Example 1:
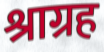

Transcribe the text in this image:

श्राग्रह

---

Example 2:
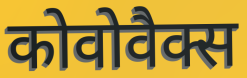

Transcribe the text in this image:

कोवोवैक्स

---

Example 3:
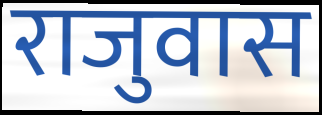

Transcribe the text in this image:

राजुवास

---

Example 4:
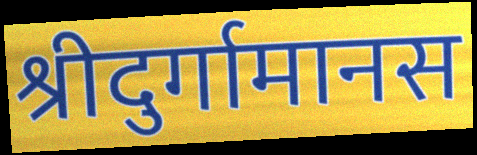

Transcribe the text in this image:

श्रीदुर्गामानस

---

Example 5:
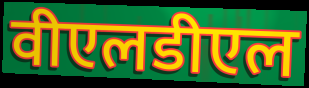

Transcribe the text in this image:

वीएलडीएल